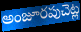
అంజూరపుచెట్ల